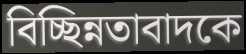
বিচ্ছিন্নতাবাদকে